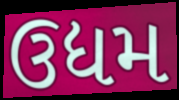
ઉદ્યમ